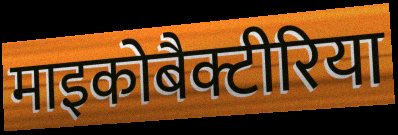
माइकोबैक्टीरिया